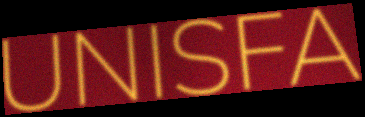
UNISFA